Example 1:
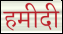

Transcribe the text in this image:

हमीदी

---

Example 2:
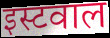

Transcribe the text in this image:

इस्टवाल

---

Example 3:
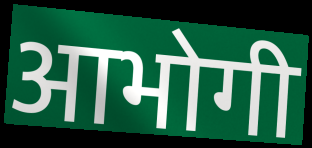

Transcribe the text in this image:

आभोगी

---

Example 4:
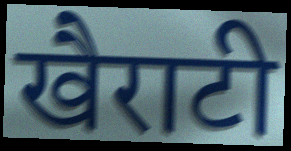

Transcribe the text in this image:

खैराटी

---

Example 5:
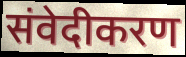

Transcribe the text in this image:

संवेदीकरण